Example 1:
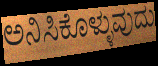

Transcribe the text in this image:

ಅನಿಸಿಕೊಳ್ಳುವುದು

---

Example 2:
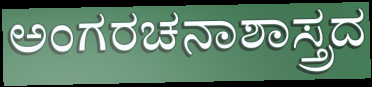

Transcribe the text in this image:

ಅಂಗರಚನಾಶಾಸ್ತ್ರದ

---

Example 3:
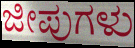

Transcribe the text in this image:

ಜೀಪುಗಳು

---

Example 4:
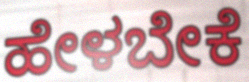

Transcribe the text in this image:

ಹೇಳಬೇಕೆ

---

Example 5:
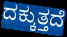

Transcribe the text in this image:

ದಕ್ಕುತ್ತದೆ